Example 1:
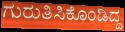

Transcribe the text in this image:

ಗುರುತಿಸಿಕೊಂಡಿದ್ದ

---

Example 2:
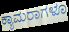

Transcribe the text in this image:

ಕ್ಯಾಮರಾಗಳೂ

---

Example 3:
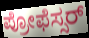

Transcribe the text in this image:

ಪ್ರೋಫೆಸ್ಸರ್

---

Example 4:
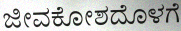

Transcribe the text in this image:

ಜೀವಕೋಶದೊಳಗೆ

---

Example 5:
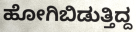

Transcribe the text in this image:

ಹೋಗಿಬಿಡುತ್ತಿದ್ದ